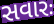
સવારઃ